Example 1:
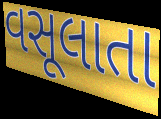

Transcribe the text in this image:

વસૂલાતા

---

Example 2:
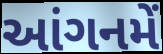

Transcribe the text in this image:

આંગનમેં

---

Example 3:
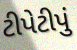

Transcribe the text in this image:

ટીપેટીપું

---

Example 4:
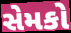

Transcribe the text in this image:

સેમકો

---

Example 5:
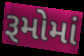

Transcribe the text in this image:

રૂમોમાં